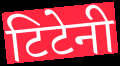
टिटेनी